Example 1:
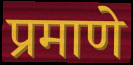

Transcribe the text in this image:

प्रमाणे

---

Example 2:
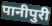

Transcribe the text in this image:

पानीपुरी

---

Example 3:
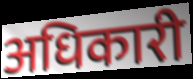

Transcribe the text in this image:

अधिकारी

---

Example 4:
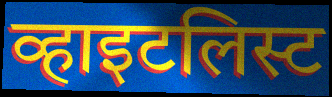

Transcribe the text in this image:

व्हाइटलिस्ट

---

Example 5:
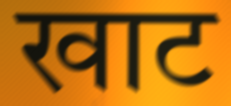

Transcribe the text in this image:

खाट